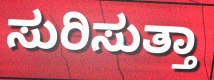
ಸುರಿಸುತ್ತಾ